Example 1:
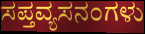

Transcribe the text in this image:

ಸಪ್ತವ್ಯಸನಂಗಳು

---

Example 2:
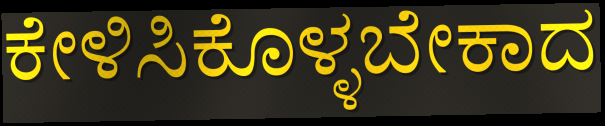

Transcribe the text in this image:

ಕೇಳಿಸಿಕೊಳ್ಳಬೇಕಾದ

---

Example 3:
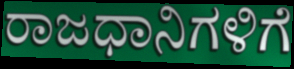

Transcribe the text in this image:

ರಾಜಧಾನಿಗಳಿಗೆ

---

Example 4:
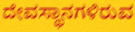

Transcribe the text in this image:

ದೇವಸ್ಥಾನಗಳಿರುವ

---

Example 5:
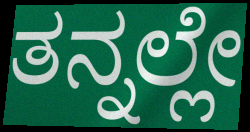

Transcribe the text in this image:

ತನ್ನಲ್ಲೇ